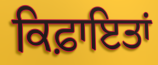
ਕਿਫ਼ਾਇਤਾਂ